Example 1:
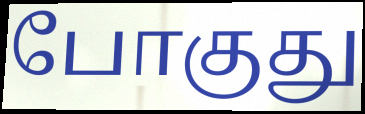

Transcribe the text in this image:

போகுது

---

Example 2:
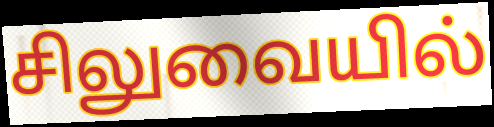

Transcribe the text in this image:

சிலுவையில்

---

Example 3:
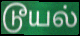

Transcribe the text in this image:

டூயல்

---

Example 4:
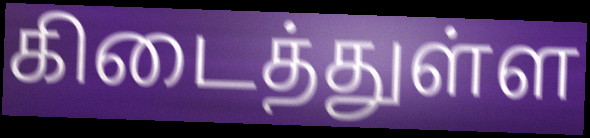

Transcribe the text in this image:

கிடைத்துள்ள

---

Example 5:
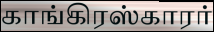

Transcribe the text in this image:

காங்கிரஸ்காரர்